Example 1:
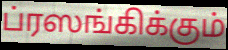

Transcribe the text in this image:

ப்ரஸங்கிக்கும்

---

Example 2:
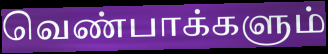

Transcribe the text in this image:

வெண்பாக்களும்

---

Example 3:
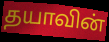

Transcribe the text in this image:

தயாவின்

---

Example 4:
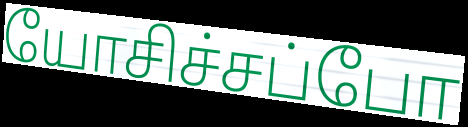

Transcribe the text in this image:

யோசிச்சப்போ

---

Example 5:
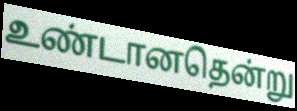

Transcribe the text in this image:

உண்டானதென்று